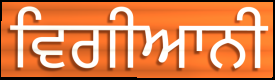
ਵਿਗੀਆਨੀ